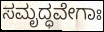
ಸಮೃದ್ಧವೇಗಾಃ